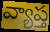
వ్యాప్త